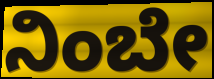
ನಿಂಬೇ